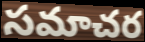
సమాచర